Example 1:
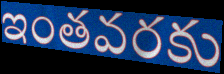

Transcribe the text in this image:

ఇంతవరకు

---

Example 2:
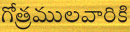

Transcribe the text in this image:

గోత్రములవారికి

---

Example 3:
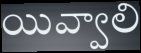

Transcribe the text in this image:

యివ్వాలి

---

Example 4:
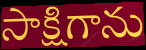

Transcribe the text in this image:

సాక్షిగాను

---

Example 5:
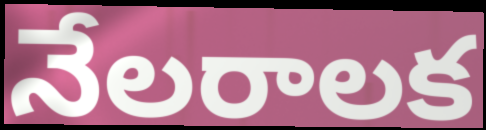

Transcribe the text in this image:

నేలరాలక